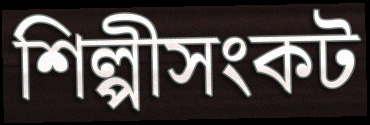
শিল্পীসংকট